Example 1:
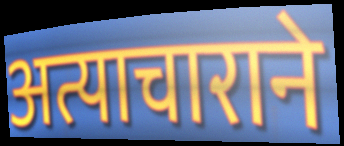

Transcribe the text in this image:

अत्याचाराने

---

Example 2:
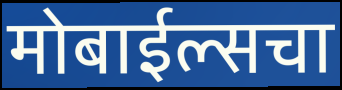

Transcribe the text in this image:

मोबाईल्सचा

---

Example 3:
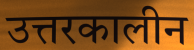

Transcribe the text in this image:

उत्तरकालीन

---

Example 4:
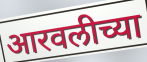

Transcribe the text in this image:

आरवलीच्या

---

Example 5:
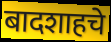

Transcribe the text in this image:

बादशाहचे